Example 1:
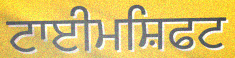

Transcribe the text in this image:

ਟਾਈਮਸ਼ਿਫਟ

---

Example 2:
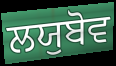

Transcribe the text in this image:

ਲਯੁਬੋਵ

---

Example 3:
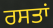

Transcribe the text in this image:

ਰਸਤਾਂ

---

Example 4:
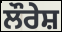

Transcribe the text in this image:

ਲੌਰੇਸ਼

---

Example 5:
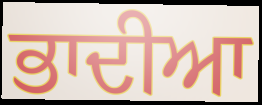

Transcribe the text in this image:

ਭਾਦੀਆ